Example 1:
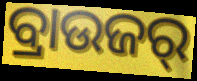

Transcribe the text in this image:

ବ୍ରାଉଜର୍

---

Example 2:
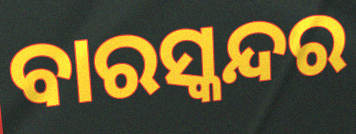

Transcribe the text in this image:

ବାରସ୍କନ୍ଦର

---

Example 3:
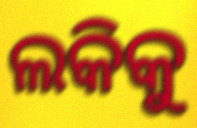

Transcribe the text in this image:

ଲକିକୁ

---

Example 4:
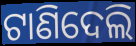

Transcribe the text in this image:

ଟାଣିଦେଲି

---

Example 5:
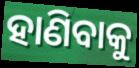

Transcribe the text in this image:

ହାଣିବାକୁ